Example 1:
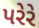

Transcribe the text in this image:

પરેરે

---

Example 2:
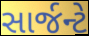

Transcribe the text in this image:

સાર્જન્ટે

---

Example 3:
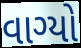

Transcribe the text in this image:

વાગ્યો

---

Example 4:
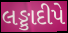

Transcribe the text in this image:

લઙ્કાદીપે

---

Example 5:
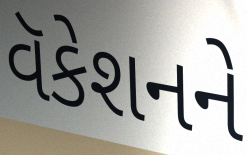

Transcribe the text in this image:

વૅકેશનને